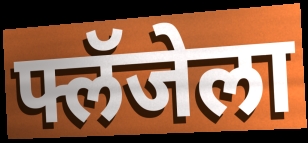
फ्लॅजेला